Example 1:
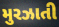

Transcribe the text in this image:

મુરઝાતી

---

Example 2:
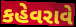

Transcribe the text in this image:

કહેવરાવે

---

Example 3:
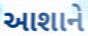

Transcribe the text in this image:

આશાને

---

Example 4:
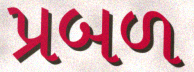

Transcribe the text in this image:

પ્રબળ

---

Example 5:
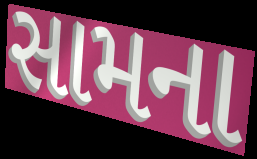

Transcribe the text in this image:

સામના